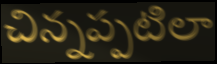
చిన్నప్పటిలా